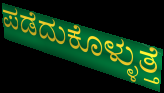
ಪಡೆದುಕೊಳ್ಳುತ್ತೆ